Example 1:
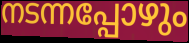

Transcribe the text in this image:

നടന്നപ്പോഴും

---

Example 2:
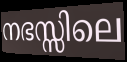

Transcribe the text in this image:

നഭസ്സിലെ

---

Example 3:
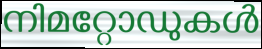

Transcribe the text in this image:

നിമറ്റോഡുകൾ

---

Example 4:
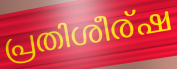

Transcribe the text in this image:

പ്രതിശീര്ഷ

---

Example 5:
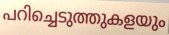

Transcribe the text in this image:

പറിച്ചെടുത്തുകളയും